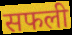
सफली